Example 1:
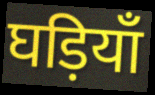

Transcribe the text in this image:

घड़ियाँ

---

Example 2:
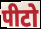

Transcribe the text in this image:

पीटो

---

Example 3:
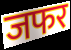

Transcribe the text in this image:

जफर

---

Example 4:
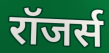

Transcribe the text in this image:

रॉजर्स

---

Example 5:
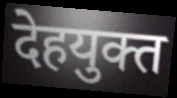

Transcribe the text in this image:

देहयुक्त